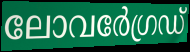
ലോവർേഗ്രഡ്